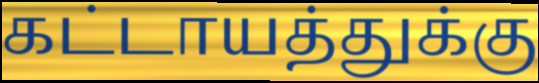
கட்டாயத்துக்கு